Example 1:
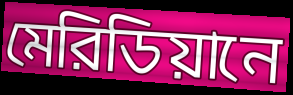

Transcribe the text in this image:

মেরিডিয়ানে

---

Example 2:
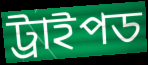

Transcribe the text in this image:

ট্রাইপড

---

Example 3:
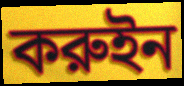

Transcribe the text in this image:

করুইন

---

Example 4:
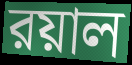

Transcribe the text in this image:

রয়াল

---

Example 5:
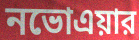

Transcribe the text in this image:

নভোএয়ার